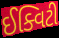
ઈક્વિટી